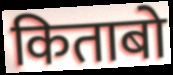
किताबो